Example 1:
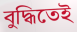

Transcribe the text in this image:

বুদ্ধিতেই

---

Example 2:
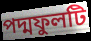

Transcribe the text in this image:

পদ্মফুলটি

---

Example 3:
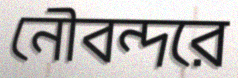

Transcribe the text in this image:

নৌবন্দরে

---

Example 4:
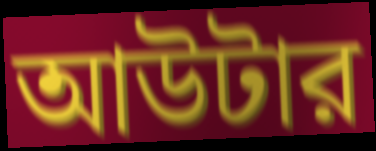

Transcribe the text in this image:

আউটার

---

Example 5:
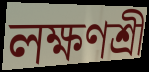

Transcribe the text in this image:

লক্ষণশ্রী